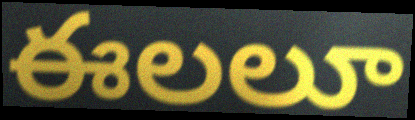
ఈలలూ